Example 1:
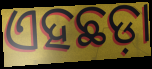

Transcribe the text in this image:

ଏହଛଡ଼ା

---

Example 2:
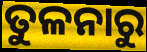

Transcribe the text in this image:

ତୁଳନାରୁ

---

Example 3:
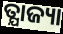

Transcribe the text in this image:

ତ୍ଯାଜ୍ୟା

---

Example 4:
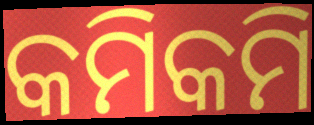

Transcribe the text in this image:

କମିକମି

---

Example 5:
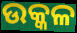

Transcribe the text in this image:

ଉକ୍କଳ